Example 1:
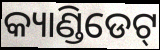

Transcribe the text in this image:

କ୍ୟାଣ୍ଡିଡେଟ୍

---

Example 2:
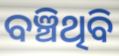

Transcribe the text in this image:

ବଞ୍ଚିଥିବି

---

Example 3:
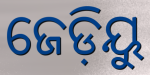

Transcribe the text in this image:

ଜେଡ଼ିୟୁ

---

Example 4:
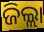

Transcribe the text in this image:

ଜିଲ୍ଲା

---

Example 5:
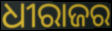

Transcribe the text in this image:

ଧୀରାଜର